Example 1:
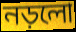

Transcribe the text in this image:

নড়লো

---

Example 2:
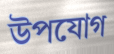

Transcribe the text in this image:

উপযোগ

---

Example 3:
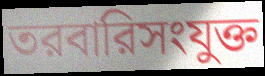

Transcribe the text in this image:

তরবারিসংযুক্ত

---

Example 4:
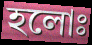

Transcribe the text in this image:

হলোঃ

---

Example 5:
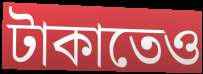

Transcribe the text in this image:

টাকাতেও